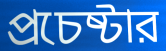
প্রচেষ্টার